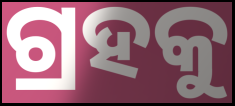
ଗ୍ରହକୁ